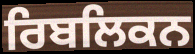
ਰਿਬਲਿਕਨ